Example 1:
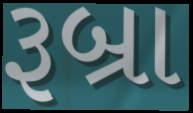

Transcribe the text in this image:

રૂબ્રા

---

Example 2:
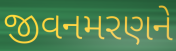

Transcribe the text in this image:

જીવનમરણને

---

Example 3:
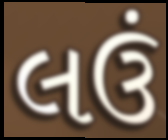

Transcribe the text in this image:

લઉં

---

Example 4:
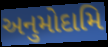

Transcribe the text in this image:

અનુમોદામિ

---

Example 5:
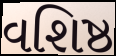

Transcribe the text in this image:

વશિષ્ઠ